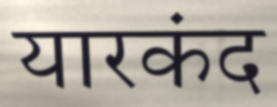
यारकंद